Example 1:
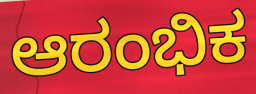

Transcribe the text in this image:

ಆರಂಭಿಕ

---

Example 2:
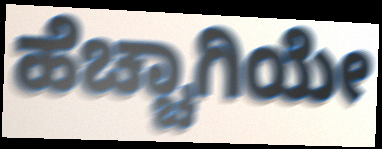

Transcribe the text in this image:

ಹೆಚ್ಚಾಗಿಯೇ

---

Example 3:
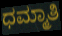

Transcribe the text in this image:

ಧಮ್ಮಾತಿ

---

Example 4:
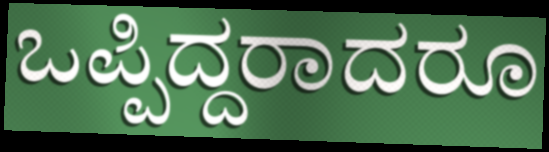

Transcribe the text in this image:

ಒಪ್ಪಿದ್ದರಾದರೂ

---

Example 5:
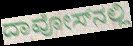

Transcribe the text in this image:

ದಾವೋಸ್‌ನಲ್ಲಿ